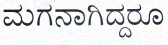
ಮಗನಾಗಿದ್ದರೂ